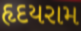
હૃદયરામ